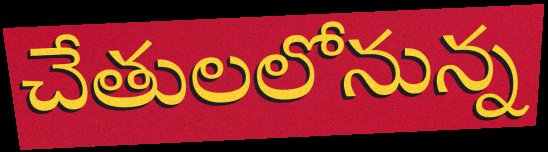
చేతులలోనున్న